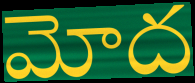
మోద